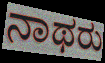
ನಾಥರು